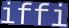
iffi